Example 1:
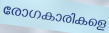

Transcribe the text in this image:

രോഗകാരികളെ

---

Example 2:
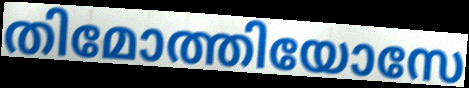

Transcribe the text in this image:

തിമോത്തിയോസേ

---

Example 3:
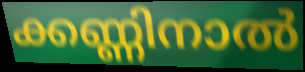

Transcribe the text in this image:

ക്കണ്ണിനാൽ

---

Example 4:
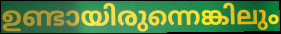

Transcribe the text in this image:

ഉണ്ടായിരുന്നെങ്കിലും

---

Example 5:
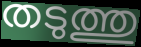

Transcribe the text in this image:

തടുത്തു